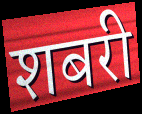
शबरी